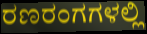
ರಣರಂಗಗಳಲ್ಲಿ